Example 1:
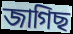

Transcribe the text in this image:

জাগিছ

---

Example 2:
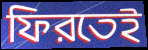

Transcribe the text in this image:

ফিরতেই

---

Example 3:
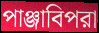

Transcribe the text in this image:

পাঞ্জাবিপরা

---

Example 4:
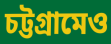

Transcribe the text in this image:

চট্টগ্রামেও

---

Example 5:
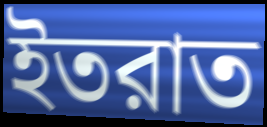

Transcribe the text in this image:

ইতরাত